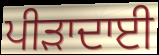
ਪੀੜਾਦਾਈ